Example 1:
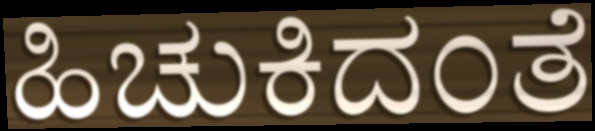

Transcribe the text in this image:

ಹಿಚುಕಿದಂತೆ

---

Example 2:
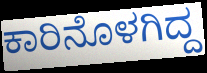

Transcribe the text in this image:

ಕಾರಿನೊಳಗಿದ್ದ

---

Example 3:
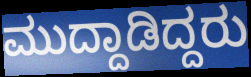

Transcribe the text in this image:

ಮುದ್ದಾಡಿದ್ದರು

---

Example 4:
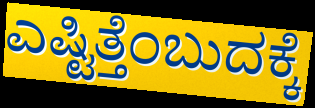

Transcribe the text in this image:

ಎಷ್ಟಿತ್ತೆಂಬುದಕ್ಕೆ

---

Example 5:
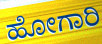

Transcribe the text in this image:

ಹೋಗಾರಿ